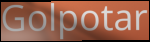
Golpotar